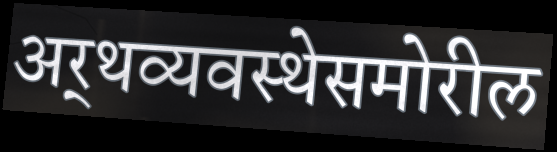
अर्थव्यवस्थेसमोरील